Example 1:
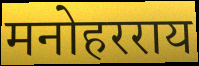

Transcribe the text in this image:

मनोहरराय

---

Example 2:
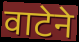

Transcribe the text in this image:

वाटेने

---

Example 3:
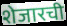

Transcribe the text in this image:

शेजारची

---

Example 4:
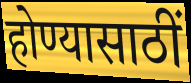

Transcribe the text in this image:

होण्यासाठीं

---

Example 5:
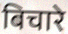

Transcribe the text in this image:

बिचारे